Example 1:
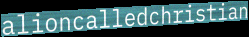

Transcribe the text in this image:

alioncalledchristian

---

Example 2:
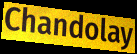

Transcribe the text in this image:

Chandolay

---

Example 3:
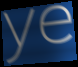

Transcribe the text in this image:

ye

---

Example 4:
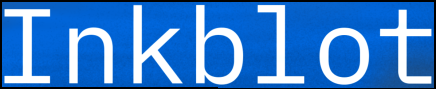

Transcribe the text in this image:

Inkblot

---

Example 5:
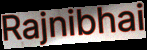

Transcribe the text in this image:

Rajnibhai